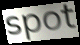
spot